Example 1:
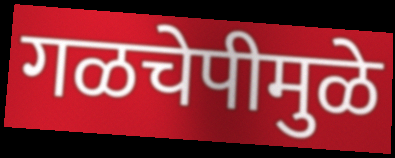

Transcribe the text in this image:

गळचेपीमुळे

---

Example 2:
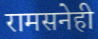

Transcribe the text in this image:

रामसनेही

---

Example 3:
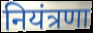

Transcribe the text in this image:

नियंत्रणा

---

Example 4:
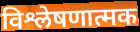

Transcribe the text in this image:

विश्लेषणात्मक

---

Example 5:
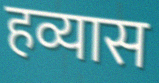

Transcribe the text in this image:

हव्यास